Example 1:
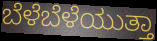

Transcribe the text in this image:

ಬೆಳೆಬೆಳೆಯುತ್ತಾ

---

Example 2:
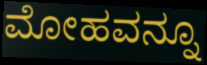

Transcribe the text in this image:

ಮೋಹವನ್ನೂ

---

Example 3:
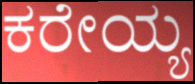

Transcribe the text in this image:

ಕರೇಯ್ಯ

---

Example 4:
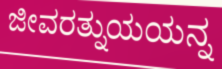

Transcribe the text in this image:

ಜೀವರತ್ನುಯಯನ್ನ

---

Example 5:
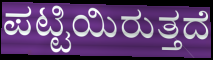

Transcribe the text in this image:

ಪಟ್ಟಿಯಿರುತ್ತದೆ